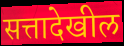
सत्तादेखील